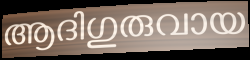
ആദിഗുരുവായ